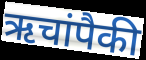
ऋचांपैकी